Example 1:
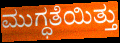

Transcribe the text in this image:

ಮುಗ್ಧತೆಯಿತ್ತು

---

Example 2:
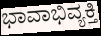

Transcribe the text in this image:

ಭಾವಾಭಿವ್ಯಕ್ತಿ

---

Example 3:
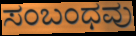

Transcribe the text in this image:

ಸಂಬಂಧವು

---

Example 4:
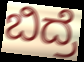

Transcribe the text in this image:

ಬಿದ್ರೆ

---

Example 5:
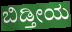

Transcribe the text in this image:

ಬಿಡ್ತೀಯ